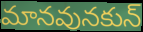
మానవునకున్